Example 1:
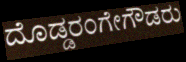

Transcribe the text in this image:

ದೊಡ್ಡರಂಗೇಗೌಡರು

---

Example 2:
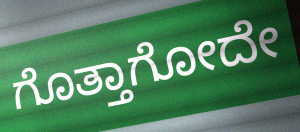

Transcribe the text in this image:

ಗೊತ್ತಾಗೋದೇ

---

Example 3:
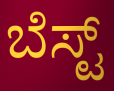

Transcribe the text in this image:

ಬೆಸ್ಟ್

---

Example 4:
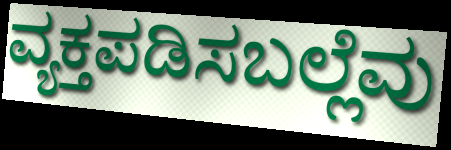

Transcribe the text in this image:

ವ್ಯಕ್ತಪಡಿಸಬಲ್ಲೆವು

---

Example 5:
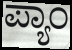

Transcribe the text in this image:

ಪ್ಯಾಂ